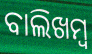
ବାଲିଖମ୍ବ